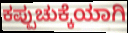
ಕಪ್ಪುಚುಕ್ಕೆಯಾಗಿ